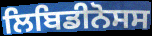
ਲਿਬਿਡੀਨੋਸਸ